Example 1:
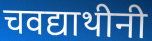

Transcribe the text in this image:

चवद्याथीनी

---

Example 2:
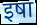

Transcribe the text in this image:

इषा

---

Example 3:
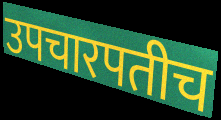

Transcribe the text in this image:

उपचारपतीच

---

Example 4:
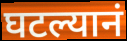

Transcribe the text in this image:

घटल्यानं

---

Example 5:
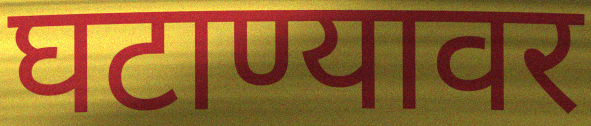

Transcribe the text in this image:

घटाण्यावर